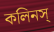
কলিনস্